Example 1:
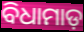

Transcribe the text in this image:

ବିଧାମାଡ଼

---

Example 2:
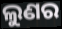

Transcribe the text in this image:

ଲୁଣର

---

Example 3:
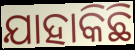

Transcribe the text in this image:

ଯାହାକିଛି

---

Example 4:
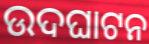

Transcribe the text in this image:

ଉଦଘାଟନ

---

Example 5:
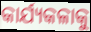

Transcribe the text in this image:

କାର୍ଯ୍ୟକଳାକୁ